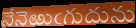
నేనెఱుఁగుదును